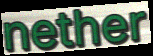
nether